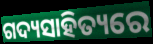
ଗଦ୍ୟସାହିତ୍ୟରେ